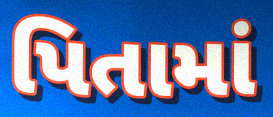
પિતામાં